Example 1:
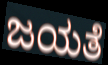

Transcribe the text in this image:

ಜಯತೆ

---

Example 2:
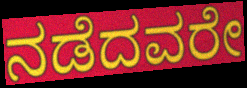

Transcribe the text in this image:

ನಡೆದವರೇ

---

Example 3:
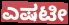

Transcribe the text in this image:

ಎಷಟೀ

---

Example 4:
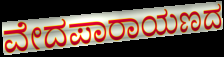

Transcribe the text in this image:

ವೇದಪಾರಾಯಣದ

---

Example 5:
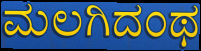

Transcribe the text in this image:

ಮಲಗಿದಂಥ